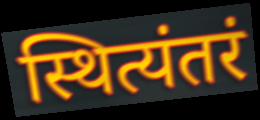
स्थित्यंतरं